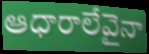
ఆధారాలేవైనా